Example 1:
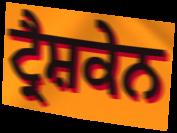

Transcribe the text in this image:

ਟ੍ਰੈਸ਼ਕੇਨ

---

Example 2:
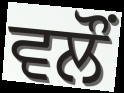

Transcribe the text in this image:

ਵਲੌਂ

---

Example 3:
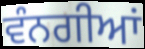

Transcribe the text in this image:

ਵੰਨਗੀਆਂ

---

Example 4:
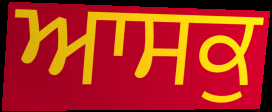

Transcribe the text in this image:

ਆਸਕੁ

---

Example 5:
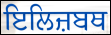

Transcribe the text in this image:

ਇਲਿਜ਼ਬਥ